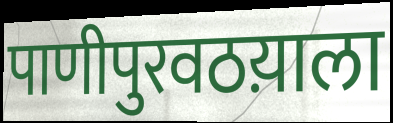
पाणीपुरवठय़ाला